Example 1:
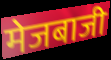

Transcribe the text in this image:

मेजबाजी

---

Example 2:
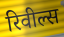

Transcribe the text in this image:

रिवील्स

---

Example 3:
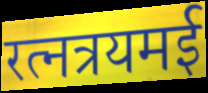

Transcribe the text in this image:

रत्नत्रयमई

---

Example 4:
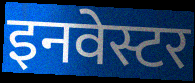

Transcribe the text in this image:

इनवेस्टर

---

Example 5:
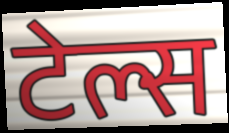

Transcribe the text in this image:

टेल्स